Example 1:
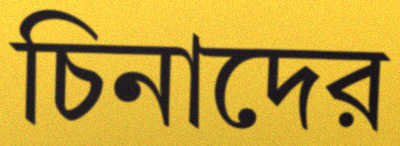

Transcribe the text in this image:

চিনাদের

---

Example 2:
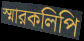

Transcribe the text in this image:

স্মারকলিপি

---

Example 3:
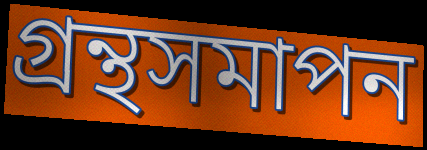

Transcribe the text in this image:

গ্রন্থসমাপন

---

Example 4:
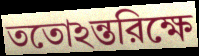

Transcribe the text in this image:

ততোঽন্তরিক্ষে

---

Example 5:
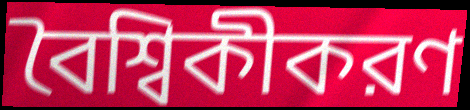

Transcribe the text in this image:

বৈশ্বিকীকরণ